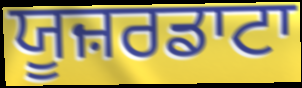
ਯੂਜ਼ਰਡਾਟਾ